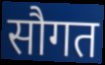
सौगत